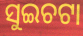
ସୁଇଚଟା